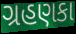
ગ્રહણકા